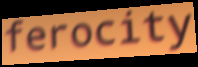
ferocity